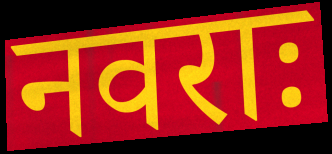
नवराः